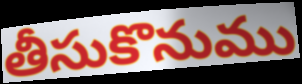
తీసుకొనుము